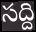
సద్ది